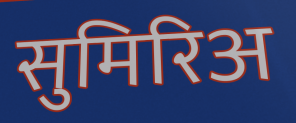
सुमिरिअ